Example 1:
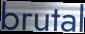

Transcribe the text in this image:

brutal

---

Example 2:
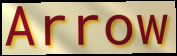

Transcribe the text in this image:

Arrow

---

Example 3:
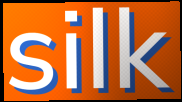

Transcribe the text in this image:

silk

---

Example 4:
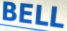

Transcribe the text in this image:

BELL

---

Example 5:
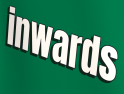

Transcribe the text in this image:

inwards